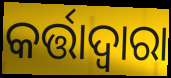
କର୍ତ୍ତାଦ୍ଵାରା